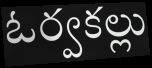
ఓర్వకల్లు